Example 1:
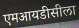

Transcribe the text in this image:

एमआयडीसीला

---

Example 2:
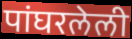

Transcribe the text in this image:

पांघरलेली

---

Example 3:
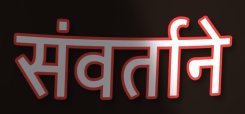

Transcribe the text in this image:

संवर्ताने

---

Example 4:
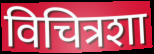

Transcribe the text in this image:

विचित्रशा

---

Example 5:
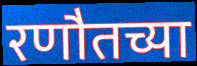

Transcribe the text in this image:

रणौतच्या